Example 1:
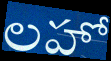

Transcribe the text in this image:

లహో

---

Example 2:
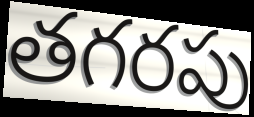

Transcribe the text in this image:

తగరపు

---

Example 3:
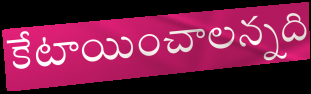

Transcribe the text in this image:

కేటాయించాలన్నది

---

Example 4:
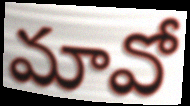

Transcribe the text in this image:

మావో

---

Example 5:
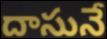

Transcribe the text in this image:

దాసునే